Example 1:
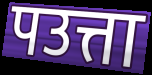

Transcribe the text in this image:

पउत्ता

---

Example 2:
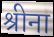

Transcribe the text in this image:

श्रीना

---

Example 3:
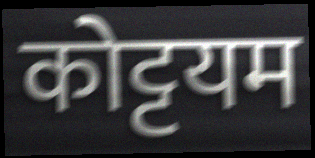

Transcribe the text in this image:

कोट्टयम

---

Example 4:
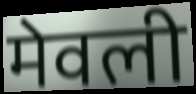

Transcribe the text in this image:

मेवली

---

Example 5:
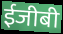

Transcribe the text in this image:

ईजीबी